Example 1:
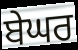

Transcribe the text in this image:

ਬੇਘਰ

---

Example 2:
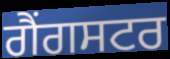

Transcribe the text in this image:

ਗੈਂਗਸਟਰ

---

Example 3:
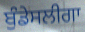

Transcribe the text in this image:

ਬੁੰਡੇਸਲੀਗਾ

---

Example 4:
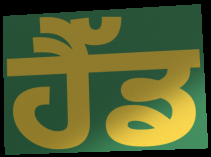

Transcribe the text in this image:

ਹੈੱਡ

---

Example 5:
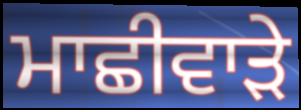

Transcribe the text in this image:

ਮਾਛੀਵਾੜੇ